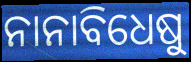
ନାନାବିଧେଷୁ